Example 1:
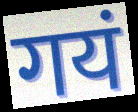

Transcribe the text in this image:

गयं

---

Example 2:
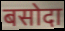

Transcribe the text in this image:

बसोदा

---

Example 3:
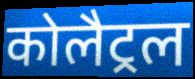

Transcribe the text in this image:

कोलैट्रल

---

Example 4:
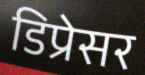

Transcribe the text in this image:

डिप्रेसर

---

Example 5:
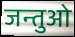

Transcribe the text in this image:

जन्तुओ